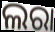
ଲରା